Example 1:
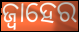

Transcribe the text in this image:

ଜ୍ୱାହେର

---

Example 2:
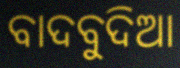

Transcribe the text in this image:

ବାଦବୁଦିଆ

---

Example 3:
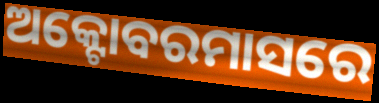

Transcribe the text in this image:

ଅକ୍ଟୋବରମାସରେ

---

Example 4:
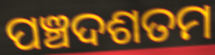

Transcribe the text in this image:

ପଞ୍ଚଦଶତମ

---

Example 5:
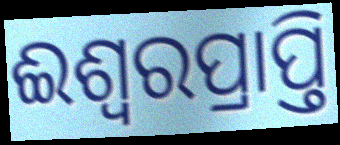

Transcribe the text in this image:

ଈଶ୍ଵରପ୍ରାପ୍ତି